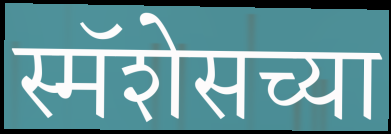
स्मॅशेसच्या